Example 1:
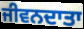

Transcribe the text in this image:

ਜੀਵਨਦਾਤਾ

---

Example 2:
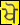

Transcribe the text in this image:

ਖੋ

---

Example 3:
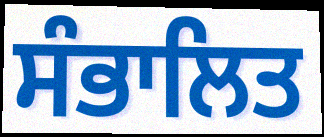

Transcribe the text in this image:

ਸੰਭਾਲਿਤ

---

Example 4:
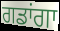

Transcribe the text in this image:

ਗਡਾਂਗਾ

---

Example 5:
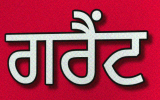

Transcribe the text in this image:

ਗਰੈਂਟ